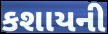
કશાયની